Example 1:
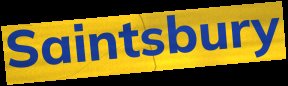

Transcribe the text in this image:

Saintsbury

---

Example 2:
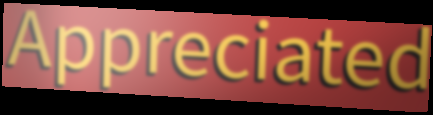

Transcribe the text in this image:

Appreciated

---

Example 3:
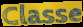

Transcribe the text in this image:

Classe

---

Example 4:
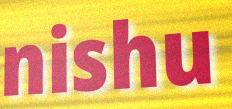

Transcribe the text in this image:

nishu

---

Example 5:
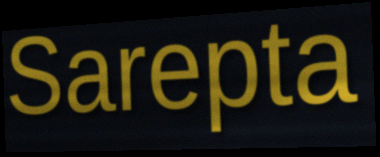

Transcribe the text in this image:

Sarepta